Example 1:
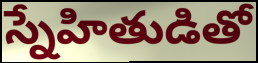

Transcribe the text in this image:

స్నేహితుడితో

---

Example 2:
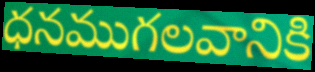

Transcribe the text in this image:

ధనముగలవానికి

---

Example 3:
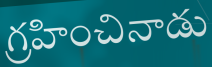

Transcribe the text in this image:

గ్రహించినాడు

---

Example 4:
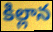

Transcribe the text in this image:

కిల్లాన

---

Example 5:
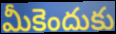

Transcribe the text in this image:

మీకెందుకు